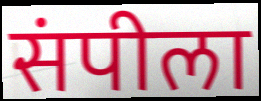
संपीला